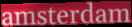
amsterdam